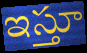
ఇస్తూ